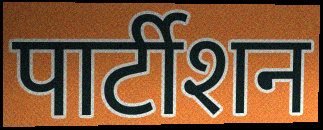
पार्टीशन